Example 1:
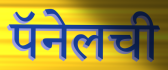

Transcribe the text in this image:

पॅनेलची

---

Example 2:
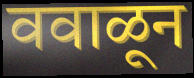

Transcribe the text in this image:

ववाळून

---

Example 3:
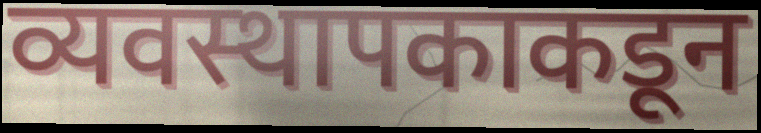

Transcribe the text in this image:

व्यवस्थापकाकडून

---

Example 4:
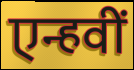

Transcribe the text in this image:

एन्हवीं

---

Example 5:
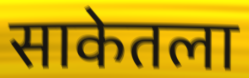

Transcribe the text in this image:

साकेतला